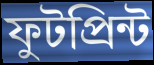
ফুটপ্রিন্ট